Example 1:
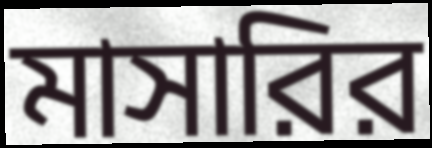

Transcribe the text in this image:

মাসারির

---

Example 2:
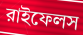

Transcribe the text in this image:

রাইফেলস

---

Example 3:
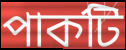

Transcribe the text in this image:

পার্কটি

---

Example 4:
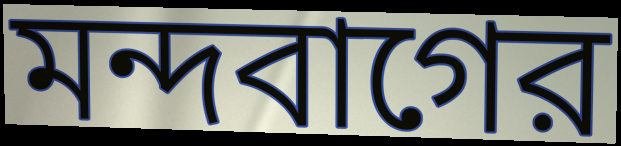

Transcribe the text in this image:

মন্দবাগের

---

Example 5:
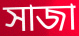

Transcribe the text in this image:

সাজা